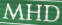
MHD